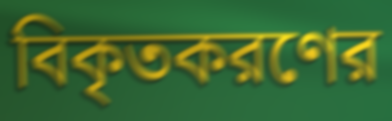
বিকৃতকরণের